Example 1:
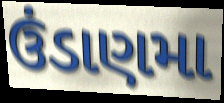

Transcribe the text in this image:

ઉંડાણમા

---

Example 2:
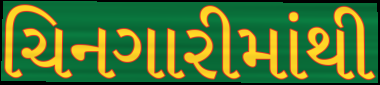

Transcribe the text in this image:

ચિનગારીમાંથી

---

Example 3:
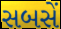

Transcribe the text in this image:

સબસેં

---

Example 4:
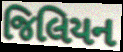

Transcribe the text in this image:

જિલિયન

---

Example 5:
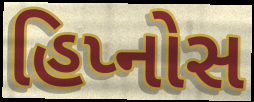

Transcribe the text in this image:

હિપ્નોસ